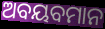
ଅବୟବମାନ